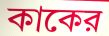
কাকের